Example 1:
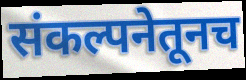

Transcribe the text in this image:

संकल्पनेतूनच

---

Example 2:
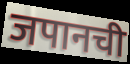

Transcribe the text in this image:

जपानची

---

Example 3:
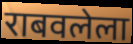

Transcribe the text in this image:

राबवलेला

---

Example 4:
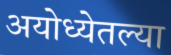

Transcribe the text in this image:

अयोध्येतल्या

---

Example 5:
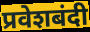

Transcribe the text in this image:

प्रवेशबंदी